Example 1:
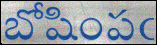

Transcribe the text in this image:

బోషింపఁ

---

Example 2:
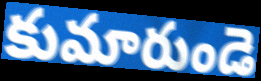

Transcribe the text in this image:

కుమారుండె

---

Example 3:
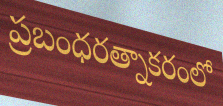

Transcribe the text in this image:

ప్రబంధరత్నాకరంలో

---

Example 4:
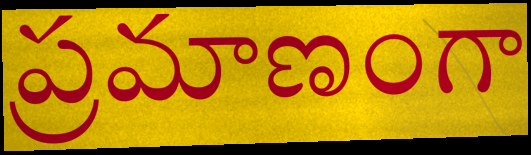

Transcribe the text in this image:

ప్రమాణంగా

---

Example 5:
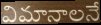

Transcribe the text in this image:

విమానాలనే